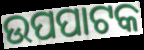
ଉପପାଟକ